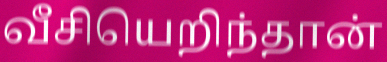
வீசியெறிந்தான்